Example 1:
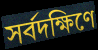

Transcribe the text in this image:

সর্বদক্ষিণে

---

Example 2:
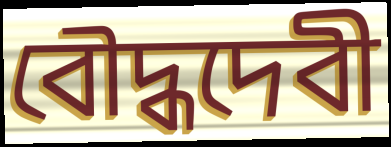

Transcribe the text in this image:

বৌদ্ধদেবী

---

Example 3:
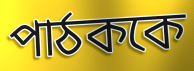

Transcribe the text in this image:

পাঠককে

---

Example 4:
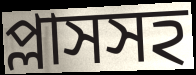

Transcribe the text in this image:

প্লাসসহ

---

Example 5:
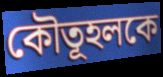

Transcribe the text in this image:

কৌতূহলকে